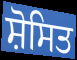
ਸ਼ੋਸਿਤ